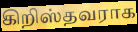
கிறிஸ்தவராக